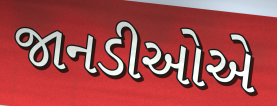
જાનડીઓએ